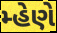
મ્હેણે